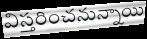
విస్తరించనున్నాయి